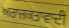
ਅਰਾਜਕਤਾਵਾਦੀ